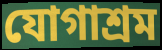
যোগাশ্রম